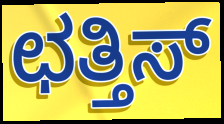
ಛತ್ತಿಸ್